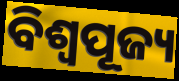
ବିଶ୍ୱପୂଜ୍ୟ